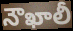
నౌఖాలీ